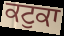
ਕਟੁਕਾ